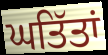
ਘਤਿੱਤਾਂ